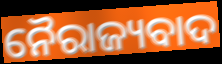
ନୈରାଜ୍ୟବାଦ